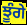
ਝੂੰਗੇ